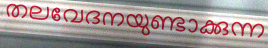
തലവേദനയുണ്ടാക്കുന്ന